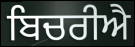
ਬਿਚਰੀਐ